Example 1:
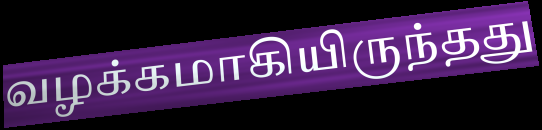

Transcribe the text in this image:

வழக்கமாகியிருந்தது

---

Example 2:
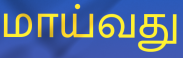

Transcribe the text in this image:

மாய்வது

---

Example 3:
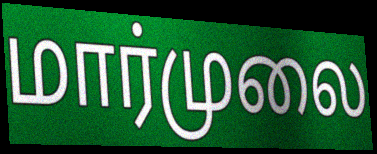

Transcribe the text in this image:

மார்முலை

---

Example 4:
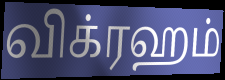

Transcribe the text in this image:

விக்ரஹம்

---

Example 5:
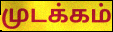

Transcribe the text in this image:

முடக்கம்